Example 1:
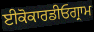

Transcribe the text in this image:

ਈਕੋਕਾਰਡੀਓਗ੍ਰਾਮ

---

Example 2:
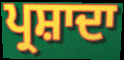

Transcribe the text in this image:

ਪ੍ਰਸ਼ਾਦਾ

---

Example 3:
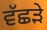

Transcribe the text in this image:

ਵੱਛੜੇ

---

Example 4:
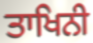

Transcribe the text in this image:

ਤਾਖਿਨੀ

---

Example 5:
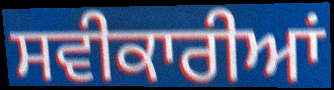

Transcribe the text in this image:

ਸਵੀਕਾਰੀਆਂ